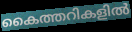
കൈത്തറികളിൽ